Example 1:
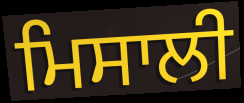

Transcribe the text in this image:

ਮਿਸਾਲੀ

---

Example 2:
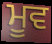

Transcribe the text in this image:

ਮੂਵ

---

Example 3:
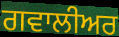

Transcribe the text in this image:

ਗਵਾਲੀਅਰ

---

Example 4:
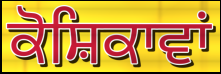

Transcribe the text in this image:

ਕੋਸ਼ਿਕਾਵਾਂ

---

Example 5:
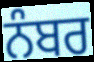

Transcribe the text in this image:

ਨੰਬਰ